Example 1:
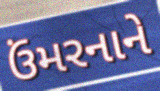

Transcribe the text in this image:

ઉંમરનાને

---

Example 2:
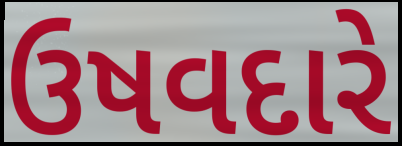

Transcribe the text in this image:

ઉષવદારે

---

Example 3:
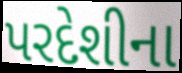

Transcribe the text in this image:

પરદેશીના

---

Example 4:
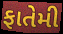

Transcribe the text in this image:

ફાતેમી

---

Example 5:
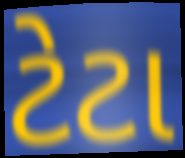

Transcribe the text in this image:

ટેટા